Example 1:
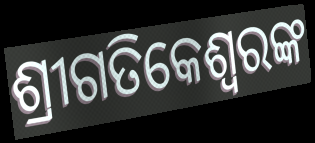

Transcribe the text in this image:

ଶ୍ରୀଗତିକେଶ୍ବରଙ୍କ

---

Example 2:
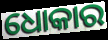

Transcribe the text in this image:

ଧୋକାର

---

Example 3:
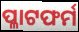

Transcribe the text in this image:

ପ୍ଳାଟଫର୍ମ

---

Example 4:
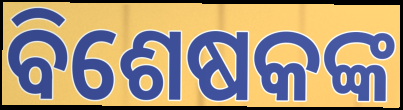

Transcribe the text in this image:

ବିଶେଷକଙ୍କ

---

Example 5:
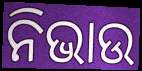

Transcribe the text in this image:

ନିଭାଉ